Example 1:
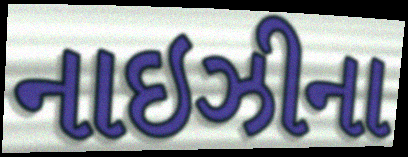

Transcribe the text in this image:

નાઇઝીના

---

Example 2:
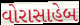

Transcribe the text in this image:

વોરાસાહેબ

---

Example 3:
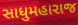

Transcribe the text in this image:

સાધુમહારાજ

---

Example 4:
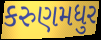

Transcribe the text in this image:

કરુણમધુર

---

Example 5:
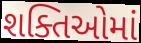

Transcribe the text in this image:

શક્તિઓમાં